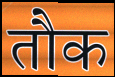
तौक